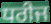
ਧਰੀਜ